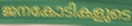
ജനകോടികളുടെ